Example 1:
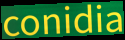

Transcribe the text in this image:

conidia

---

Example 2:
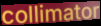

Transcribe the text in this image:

collimator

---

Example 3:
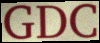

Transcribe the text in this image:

GDC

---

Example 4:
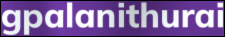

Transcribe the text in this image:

gpalanithurai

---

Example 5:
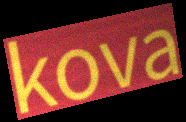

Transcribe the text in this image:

kova